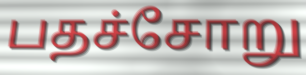
பதச்சோறு